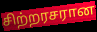
சிற்றரசரான